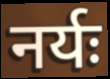
नर्यः